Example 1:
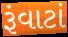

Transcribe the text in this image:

રૂંવાટાં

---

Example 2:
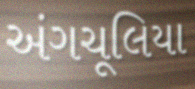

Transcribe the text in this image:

અંગચૂલિયા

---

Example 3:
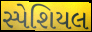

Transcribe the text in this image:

સ્પેશિયલ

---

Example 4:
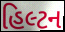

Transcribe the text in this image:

હિલ્ટન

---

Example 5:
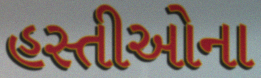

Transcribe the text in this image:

હસ્તીઓના